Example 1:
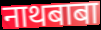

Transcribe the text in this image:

नाथबाबा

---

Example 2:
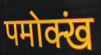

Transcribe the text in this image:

पमोक्खं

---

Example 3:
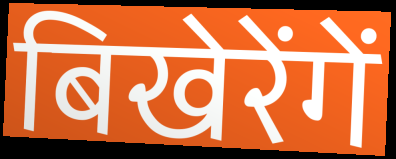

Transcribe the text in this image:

बिखेरेंगें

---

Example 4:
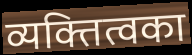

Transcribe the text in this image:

व्यक्तित्वका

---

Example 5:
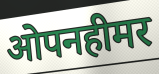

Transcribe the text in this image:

ओपनहीमर